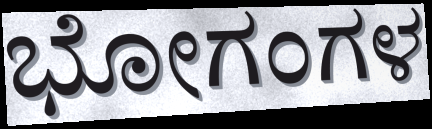
ಭೋಗಂಗಳ